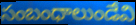
సంబంధాలుండేవి